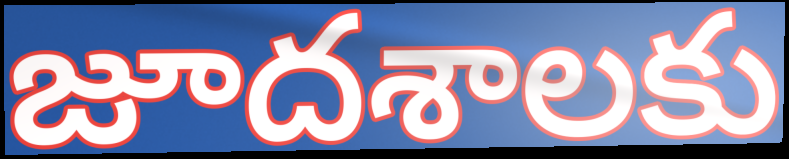
జూదశాలకు